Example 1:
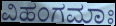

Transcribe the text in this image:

ವಿಹಂಗಮಾಃ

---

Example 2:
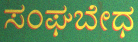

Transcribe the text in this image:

ಸಂಘಬೇಧ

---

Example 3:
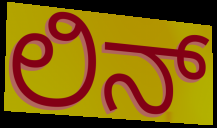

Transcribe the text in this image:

ಲಿನ್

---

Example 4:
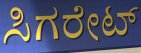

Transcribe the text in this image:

ಸಿಗರೇಟ್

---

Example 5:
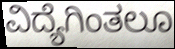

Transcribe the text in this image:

ವಿದ್ಯೆಗಿಂತಲೂ